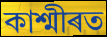
কাশ্মীৰত